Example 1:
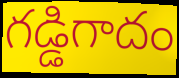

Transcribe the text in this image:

గడ్డిగాదం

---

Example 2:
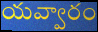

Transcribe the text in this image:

యవ్వారం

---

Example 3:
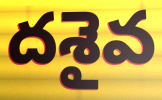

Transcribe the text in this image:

దశైవ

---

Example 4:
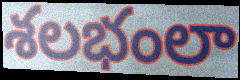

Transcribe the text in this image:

శలభంలా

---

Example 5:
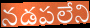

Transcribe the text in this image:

నడపలేని